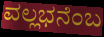
ವಲ್ಲಭನೆಂಬ